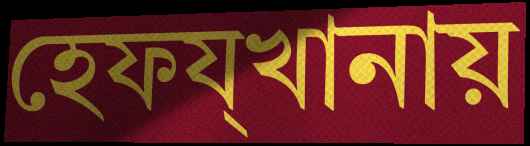
হেফয্খানায়